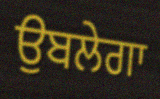
ਉਬਲੇਗਾ